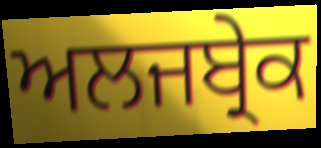
ਅਲਜਬ੍ਰੇਕ